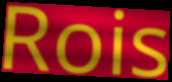
Rois